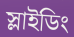
স্লাইডিং